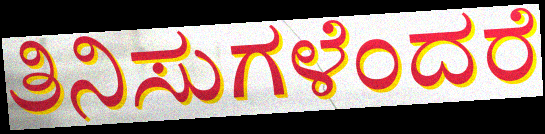
ತಿನಿಸುಗಳೆಂದರೆ